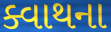
ક્વાથના